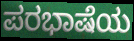
ಪರಭಾಷೆಯ